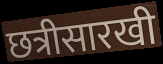
छत्रीसारखी